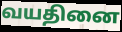
வயதினை